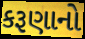
કરૂણાનો